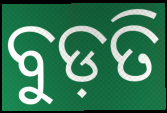
ବୁଡ଼ତି